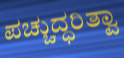
ಪಚ್ಚುದ್ಧರಿತ್ವಾ